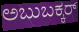
ಅಬುಬಕ್ಕರ್